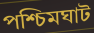
পশ্চিমঘাট